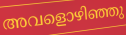
അവളൊഴിഞ്ഞു